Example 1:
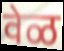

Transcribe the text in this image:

वेळ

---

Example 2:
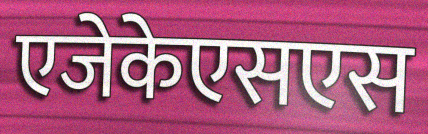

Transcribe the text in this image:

एजेकेएसएस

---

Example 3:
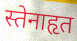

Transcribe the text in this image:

स्तेनाहृत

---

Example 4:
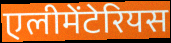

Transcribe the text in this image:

एलीमेंटेरियस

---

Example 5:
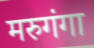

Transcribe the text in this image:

मरुगंगा